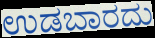
ಉಡಬಾರದು